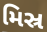
મિસ્ર